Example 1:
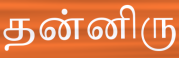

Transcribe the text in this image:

தன்னிரு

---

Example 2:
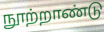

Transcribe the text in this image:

நூற்றாண்டு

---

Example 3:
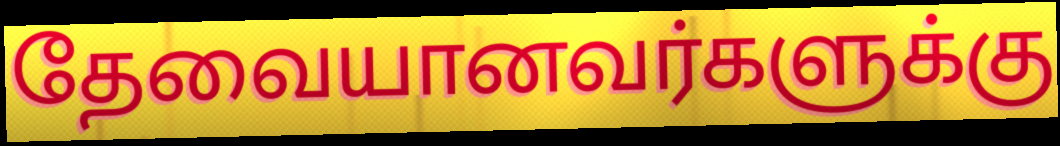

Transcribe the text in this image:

தேவையானவர்களுக்கு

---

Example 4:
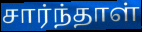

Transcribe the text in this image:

சார்ந்தாள்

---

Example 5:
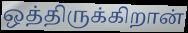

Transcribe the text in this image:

ஒத்திருக்கிறான்